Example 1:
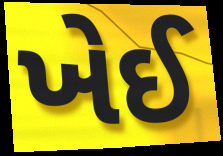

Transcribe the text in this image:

ખેઈ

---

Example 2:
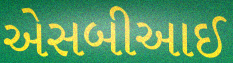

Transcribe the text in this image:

એસબીઆઈ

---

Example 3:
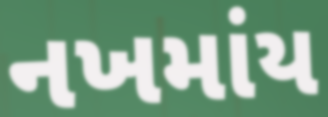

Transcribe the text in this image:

નખમાંય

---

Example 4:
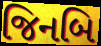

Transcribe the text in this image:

જિનબિ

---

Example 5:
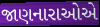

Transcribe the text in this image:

જાણનારાઓએ